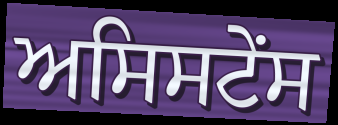
ਅਸਿਸਟੇਂਸ